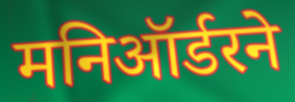
मनिऑर्डरने